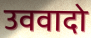
उववादो